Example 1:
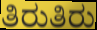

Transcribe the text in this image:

ತಿರುತಿರು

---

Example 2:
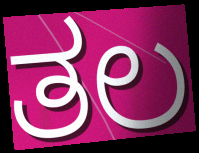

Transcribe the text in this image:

ತಲ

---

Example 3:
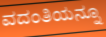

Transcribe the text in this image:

ವದಂತಿಯನ್ನೂ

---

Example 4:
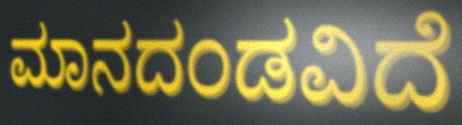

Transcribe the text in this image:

ಮಾನದಂಡವಿದೆ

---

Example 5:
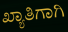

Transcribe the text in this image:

ಖ್ಯಾತಿಗಾಗಿ